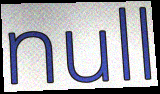
null